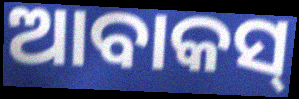
ଆବାକସ୍